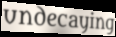
undecaying